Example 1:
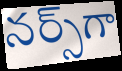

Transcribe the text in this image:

నర్స్‌గా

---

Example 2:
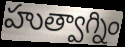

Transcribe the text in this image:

హుత్వాగ్నిం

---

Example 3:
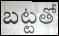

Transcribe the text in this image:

బట్టతో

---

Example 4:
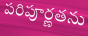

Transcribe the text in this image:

పరిపూర్ణతను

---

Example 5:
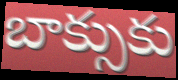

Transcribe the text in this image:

బాక్సుకు